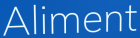
Aliment